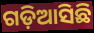
ଗଡ଼ିଆସିଛି